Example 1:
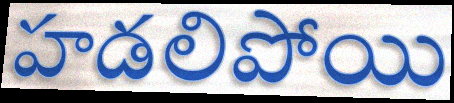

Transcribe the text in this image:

హడలిపోయి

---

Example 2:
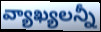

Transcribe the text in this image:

వ్యాఖ్యలన్నీ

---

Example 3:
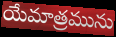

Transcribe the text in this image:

యేమాత్రమును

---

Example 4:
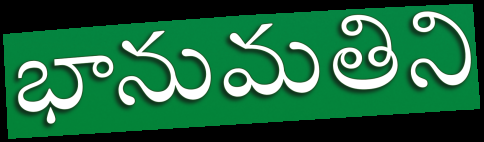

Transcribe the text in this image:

భానుమతిని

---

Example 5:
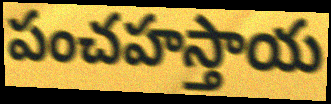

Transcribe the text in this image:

పంచహస్తాయ